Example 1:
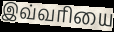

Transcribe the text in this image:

இவ்வரியை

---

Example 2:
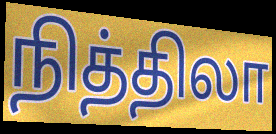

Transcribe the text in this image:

நித்திலா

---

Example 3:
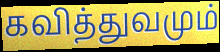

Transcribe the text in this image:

கவித்துவமும்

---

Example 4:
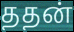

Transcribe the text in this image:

ததன்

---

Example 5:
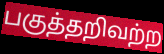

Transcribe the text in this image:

பகுத்தறிவற்ற